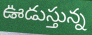
ఊడుస్తున్న